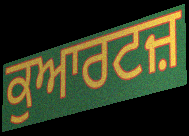
ਕੁਆਰਟਜ਼